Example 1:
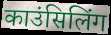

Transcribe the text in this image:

काउंसिलिंग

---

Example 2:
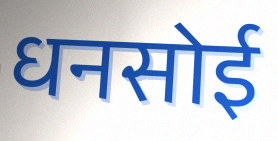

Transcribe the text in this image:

धनसोई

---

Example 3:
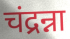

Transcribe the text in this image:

चंद्रन्ना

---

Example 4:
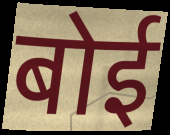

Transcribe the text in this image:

बोई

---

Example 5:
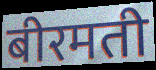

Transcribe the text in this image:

बीरमती